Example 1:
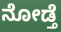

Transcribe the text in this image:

ನೋಡ್ತೆ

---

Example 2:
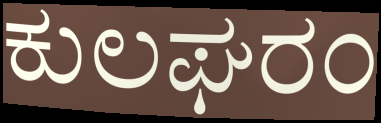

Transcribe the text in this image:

ಕುಲಘರಂ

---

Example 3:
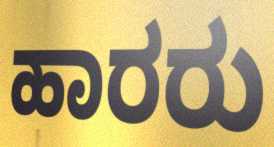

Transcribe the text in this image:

ಹಾರರು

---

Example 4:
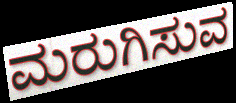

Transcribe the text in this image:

ಮರುಗಿಸುವ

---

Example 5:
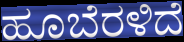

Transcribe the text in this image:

ಹೂಬೆರಳಿದೆ